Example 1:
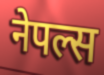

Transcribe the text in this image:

नेपल्स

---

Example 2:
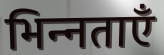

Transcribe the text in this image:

भिन्नताएँ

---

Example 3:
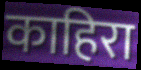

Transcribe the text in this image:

काहिरा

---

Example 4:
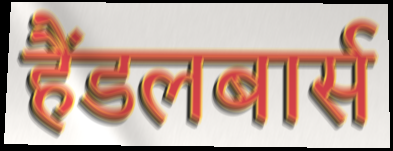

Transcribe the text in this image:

हैंडलबार्स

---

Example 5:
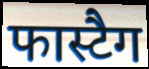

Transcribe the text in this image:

फास्टैग